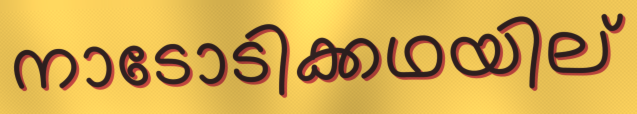
നാടോടിക്കഥയില്